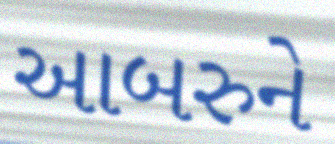
આબરુને